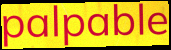
palpable